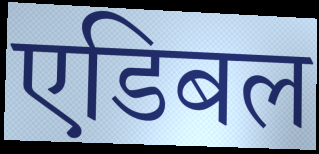
एडिबल